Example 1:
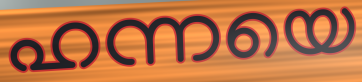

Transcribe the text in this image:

ഹന്നയെ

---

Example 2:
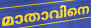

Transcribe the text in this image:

മാതാവിനെ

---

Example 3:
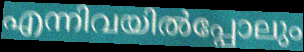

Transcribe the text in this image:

എന്നിവയിൽപ്പോലും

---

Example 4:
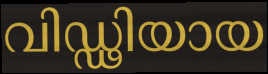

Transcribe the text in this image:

വിഡ്ഢിയായ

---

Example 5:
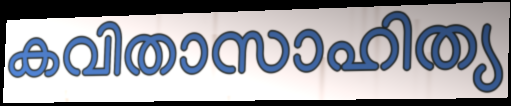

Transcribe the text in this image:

കവിതാസാഹിത്യ